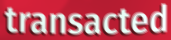
transacted